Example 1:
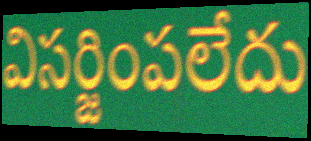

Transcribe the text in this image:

విసర్జింపలేదు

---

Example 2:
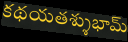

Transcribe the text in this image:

కథయతశ్శుభామ్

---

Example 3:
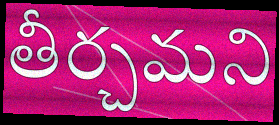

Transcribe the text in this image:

తీర్చమని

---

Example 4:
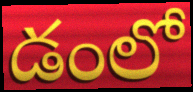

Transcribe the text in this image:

డంలో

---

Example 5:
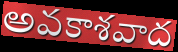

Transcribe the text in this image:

అవకాశవాద